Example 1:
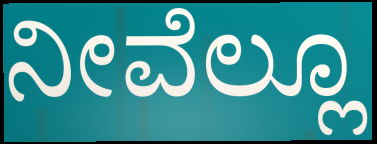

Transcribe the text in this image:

ನೀವೆಲ್ಲೂ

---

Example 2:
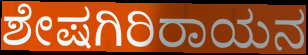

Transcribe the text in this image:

ಶೇಷಗಿರಿರಾಯನ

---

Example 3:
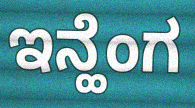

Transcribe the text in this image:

ಇನ್ಹೆಂಗ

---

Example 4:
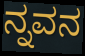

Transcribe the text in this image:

ನ್ನವನ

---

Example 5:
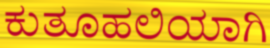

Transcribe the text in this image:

ಕುತೂಹಲಿಯಾಗಿ